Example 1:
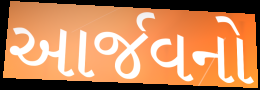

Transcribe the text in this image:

આર્જવનો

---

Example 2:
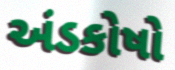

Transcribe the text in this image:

અંડકોષો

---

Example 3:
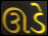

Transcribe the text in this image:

ઊડે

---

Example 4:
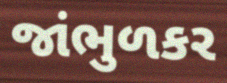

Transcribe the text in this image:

જાંભુળકર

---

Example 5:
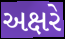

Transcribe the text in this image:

અક્ષરે